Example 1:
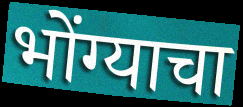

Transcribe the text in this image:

भोंग्याचा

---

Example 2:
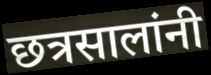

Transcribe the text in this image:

छत्रसालांनी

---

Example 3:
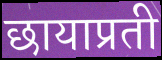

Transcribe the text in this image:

छायाप्रती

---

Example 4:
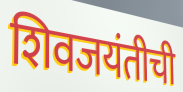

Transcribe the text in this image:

शिवजयंतीची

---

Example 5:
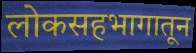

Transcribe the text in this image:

लोकसहभागातून